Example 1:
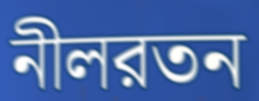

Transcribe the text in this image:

নীলরতন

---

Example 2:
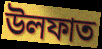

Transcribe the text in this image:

উলফাত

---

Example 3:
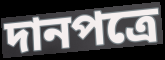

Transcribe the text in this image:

দানপত্রে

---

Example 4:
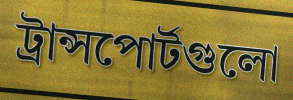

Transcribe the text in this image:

ট্রান্সপোর্টগুলো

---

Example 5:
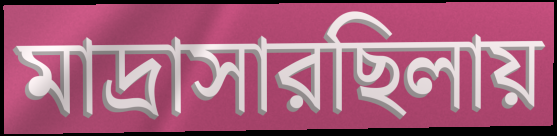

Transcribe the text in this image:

মাদ্রাসারছিলায়